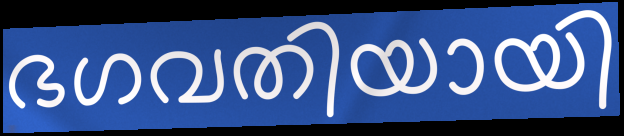
ഭഗവതിയായി